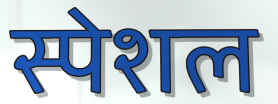
स्‍पेशल